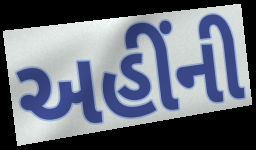
અહીંની